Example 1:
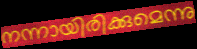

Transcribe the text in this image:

നന്നായിരിക്കുമെന്നു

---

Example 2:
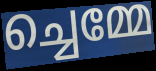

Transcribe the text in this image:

ച്ചെമ്മേ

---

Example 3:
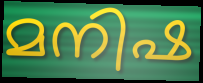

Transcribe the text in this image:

മനിഷ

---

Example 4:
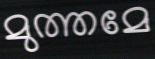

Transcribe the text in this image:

മുത്തമേ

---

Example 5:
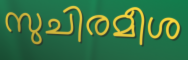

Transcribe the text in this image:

സുചിരമീശ